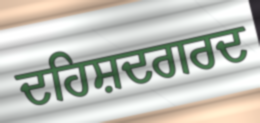
ਦਹਿਸ਼ਦਗਰਦ